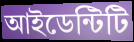
আইডেন্টিটি